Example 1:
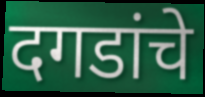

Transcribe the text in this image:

दगडांचे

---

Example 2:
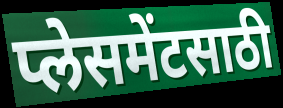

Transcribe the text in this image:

प्लेसमेंटसाठी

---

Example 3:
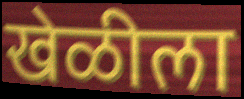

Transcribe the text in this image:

खेळीला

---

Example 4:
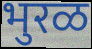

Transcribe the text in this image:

भुरळ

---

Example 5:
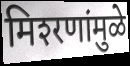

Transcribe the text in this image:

मिश्रणांमुळे